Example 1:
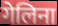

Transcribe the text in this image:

गेलिना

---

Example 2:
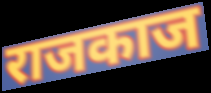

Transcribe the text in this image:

राजकाज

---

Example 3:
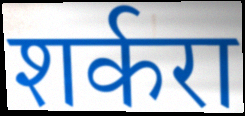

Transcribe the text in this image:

शर्करा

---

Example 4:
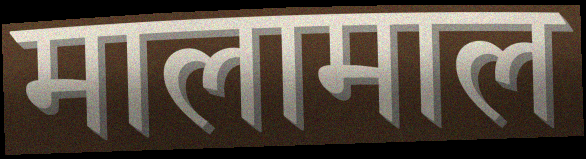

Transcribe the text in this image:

मालामाल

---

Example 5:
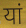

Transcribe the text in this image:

यां